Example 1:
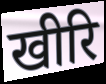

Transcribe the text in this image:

खीरि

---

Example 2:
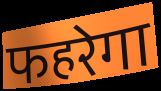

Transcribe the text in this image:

फहरेगा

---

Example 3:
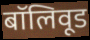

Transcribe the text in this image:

बॉलिवूड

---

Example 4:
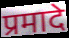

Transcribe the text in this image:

प्रमादे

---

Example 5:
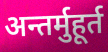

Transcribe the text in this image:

अन्तर्मुहूर्त